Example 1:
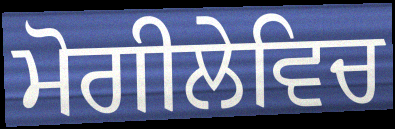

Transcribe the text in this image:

ਮੋਗੀਲੇਵਿਚ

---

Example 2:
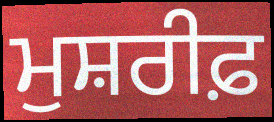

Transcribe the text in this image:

ਮੁਸ਼ਰੀਫ਼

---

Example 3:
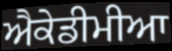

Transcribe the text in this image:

ਐਕੇਡੀਮੀਆ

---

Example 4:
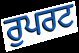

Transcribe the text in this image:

ਰੁਪਰਟ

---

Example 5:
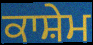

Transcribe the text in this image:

ਕਾਸ਼ੇਮ